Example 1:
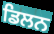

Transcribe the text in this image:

ਡਿਲਨ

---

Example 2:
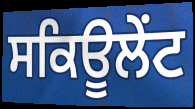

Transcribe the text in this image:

ਸਕਿਊਲੇਂਟ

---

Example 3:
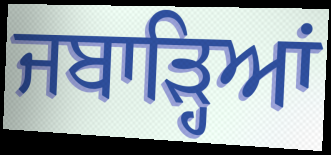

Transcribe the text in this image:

ਜਬਾੜ੍ਹਿਆਂ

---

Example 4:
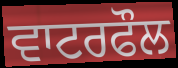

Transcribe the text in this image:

ਵਾਟਰਫੌਲ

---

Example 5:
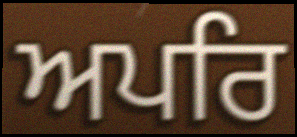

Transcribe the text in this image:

ਅਪਰਿ